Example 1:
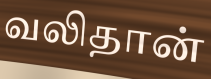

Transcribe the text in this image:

வலிதான்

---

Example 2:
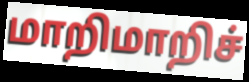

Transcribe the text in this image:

மாறிமாறிச்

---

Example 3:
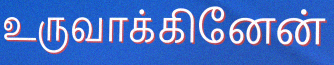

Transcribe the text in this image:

உருவாக்கினேன்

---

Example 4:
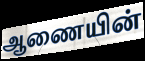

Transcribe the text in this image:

ஆணையின்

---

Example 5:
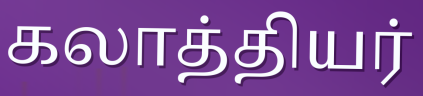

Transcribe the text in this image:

கலாத்தியர்